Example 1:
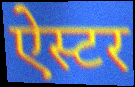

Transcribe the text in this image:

ऐस्टर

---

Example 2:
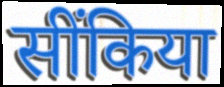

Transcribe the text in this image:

सींकिया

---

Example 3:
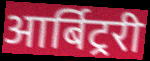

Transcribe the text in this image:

आर्बिट्ररी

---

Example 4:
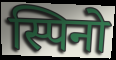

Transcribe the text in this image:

स्पिनो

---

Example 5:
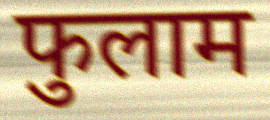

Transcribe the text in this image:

फुलाम